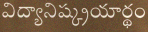
విద్యానిష్క్రయార్థం